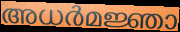
അധർമജ്ഞാ